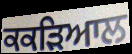
ਕਕੜਿਆਲ